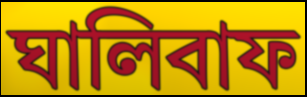
ঘালিবাফ